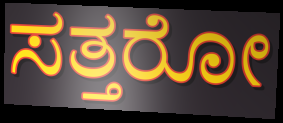
ಸತ್ತರೋ